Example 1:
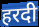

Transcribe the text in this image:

हरदी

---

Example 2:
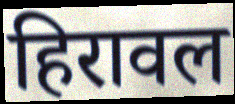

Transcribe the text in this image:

हिरावल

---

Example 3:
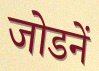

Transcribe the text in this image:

जोडनें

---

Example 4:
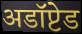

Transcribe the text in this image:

अडॉप्टेड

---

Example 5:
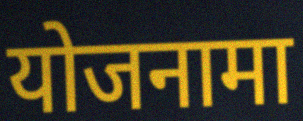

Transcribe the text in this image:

योजनामा